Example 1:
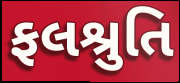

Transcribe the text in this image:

ફલશ્રુતિ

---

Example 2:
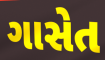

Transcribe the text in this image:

ગાસેત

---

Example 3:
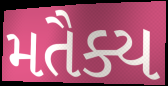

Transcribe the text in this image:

મતૈક્ય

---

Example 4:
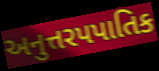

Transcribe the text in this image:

અનુત્તરપપાતિક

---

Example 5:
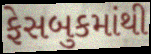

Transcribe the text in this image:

ફેસબુકમાંથી